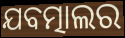
ଯବତ୍ମାଲର